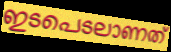
ഇടപെടലാണത്